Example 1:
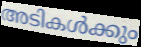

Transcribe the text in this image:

അടികൾക്കും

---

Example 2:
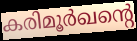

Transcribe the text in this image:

കരിമൂർഖന്റെ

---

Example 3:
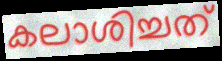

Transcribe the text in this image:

കലാശിച്ചത്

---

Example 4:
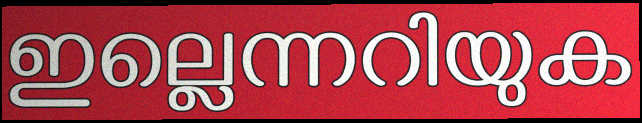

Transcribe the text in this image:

ഇല്ലെന്നറിയുക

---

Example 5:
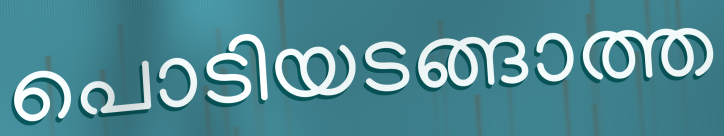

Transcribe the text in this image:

പൊടിയടങ്ങാത്ത